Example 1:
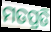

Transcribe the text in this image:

ମତପ୍ରତି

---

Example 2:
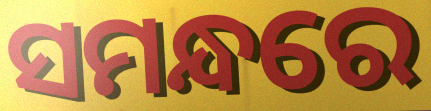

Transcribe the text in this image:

ସମନ୍ଧରେ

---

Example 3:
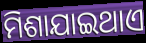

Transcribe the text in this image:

ମିଶାଯାଇଥାଏ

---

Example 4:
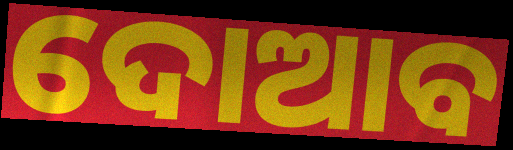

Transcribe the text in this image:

ଦୋଆବ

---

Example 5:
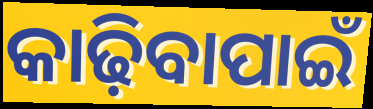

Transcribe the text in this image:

କାଢ଼ିବାପାଇଁ